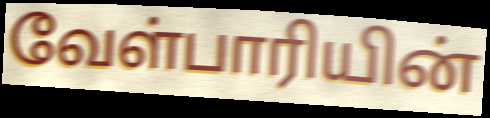
வேள்பாரியின்